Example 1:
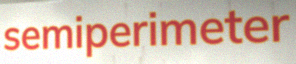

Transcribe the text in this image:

semiperimeter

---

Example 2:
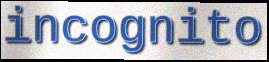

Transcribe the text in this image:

incognito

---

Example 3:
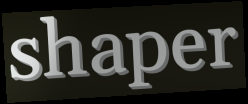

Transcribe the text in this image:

shaper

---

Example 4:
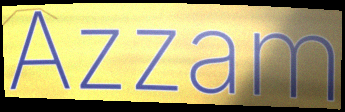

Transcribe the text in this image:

Azzam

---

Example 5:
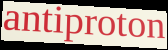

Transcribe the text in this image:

antiproton